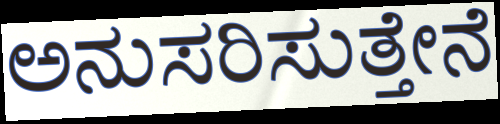
ಅನುಸರಿಸುತ್ತೇನೆ